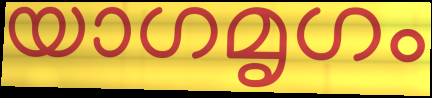
യാഗമൃഗം